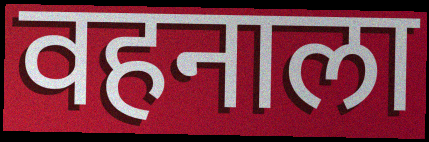
वहनाला